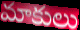
మాకులు